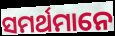
ସମର୍ଥମାନେ